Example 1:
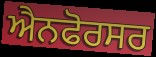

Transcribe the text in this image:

ਐਨਫੋਰਸਰ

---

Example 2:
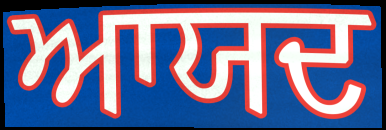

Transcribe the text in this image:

ਆਯਦ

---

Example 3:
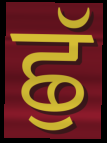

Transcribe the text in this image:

ਛੁੱ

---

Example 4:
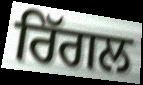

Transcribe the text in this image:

ਰਿੱਗਲ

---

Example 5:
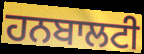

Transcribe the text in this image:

ਹਨਬਾਲਟੀ